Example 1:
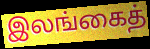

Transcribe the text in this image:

இலங்கைத்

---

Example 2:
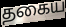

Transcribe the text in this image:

தகைய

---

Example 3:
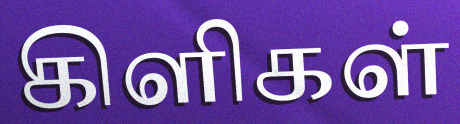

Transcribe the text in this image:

கிளிகள்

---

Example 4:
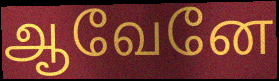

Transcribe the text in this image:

ஆவேனே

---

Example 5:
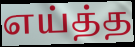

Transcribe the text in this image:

எய்த்த